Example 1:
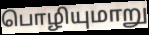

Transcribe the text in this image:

பொழியுமாறு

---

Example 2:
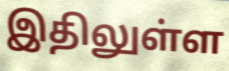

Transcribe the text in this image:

இதிலுள்ள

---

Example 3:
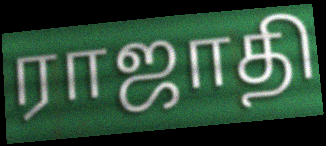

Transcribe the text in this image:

ராஜாதி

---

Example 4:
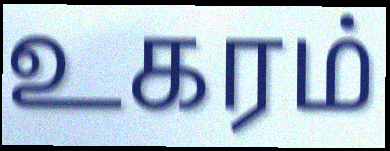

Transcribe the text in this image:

உகரம்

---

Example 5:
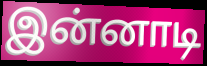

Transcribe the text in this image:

இன்னாடி